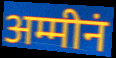
अम्मीनं